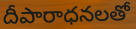
దీపారాధనలతో